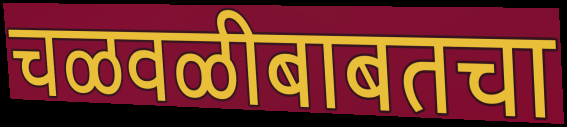
चळवळीबाबतचा